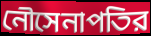
নৌসেনাপতির